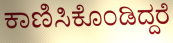
ಕಾಣಿಸಿಕೊಂಡಿದ್ದರೆ